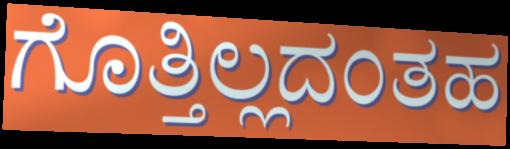
ಗೊತ್ತಿಲ್ಲದಂತಹ